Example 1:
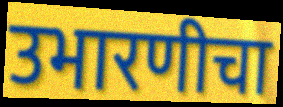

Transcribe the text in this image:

उभारणीचा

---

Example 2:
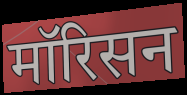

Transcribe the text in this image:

मॉरिसन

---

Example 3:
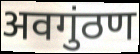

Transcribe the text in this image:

अवगुंठण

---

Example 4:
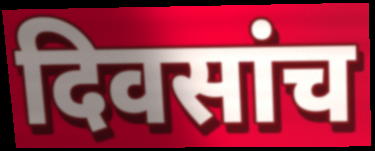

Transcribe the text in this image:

दिवसांच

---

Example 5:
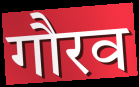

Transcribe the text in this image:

गौरव